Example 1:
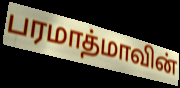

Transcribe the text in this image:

பரமாத்மாவின்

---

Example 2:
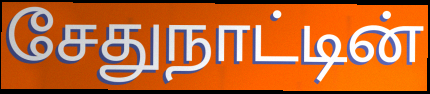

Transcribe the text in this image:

சேதுநாட்டின்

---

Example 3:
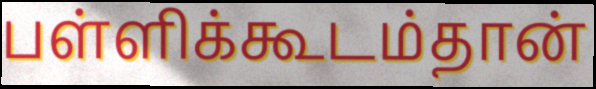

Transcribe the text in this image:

பள்ளிக்கூடம்தான்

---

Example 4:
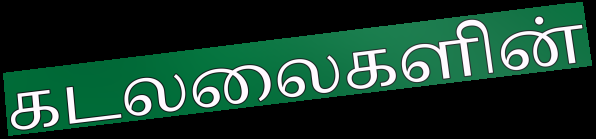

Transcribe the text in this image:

கடலலைகளின்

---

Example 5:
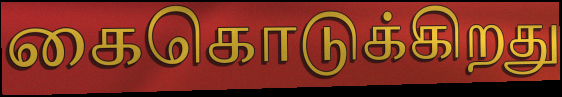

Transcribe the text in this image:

கைகொடுக்கிறது